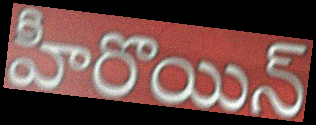
హీరొయిన్